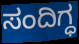
ಸಂದಿಗ್ಧ